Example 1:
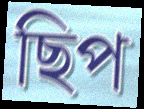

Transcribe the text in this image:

ছিপ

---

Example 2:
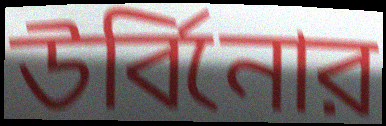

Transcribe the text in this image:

উর্বিনোর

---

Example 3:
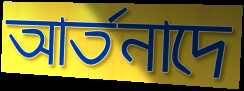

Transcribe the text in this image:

আর্তনাদে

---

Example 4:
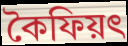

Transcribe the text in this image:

কৈফিয়ৎ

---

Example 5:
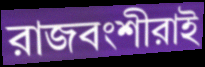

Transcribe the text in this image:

রাজবংশীরাই